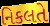
નિકલતે